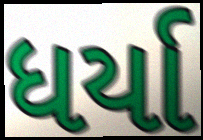
ધર્યા